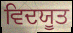
ਵਿਦਯੂਤ